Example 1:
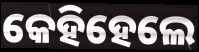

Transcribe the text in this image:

କେହିହେଲେ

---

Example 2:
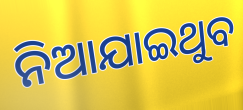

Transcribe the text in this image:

ନିଆଯାଇଥୁବ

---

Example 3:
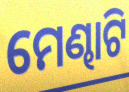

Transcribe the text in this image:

ମେଣ୍ଢାଟି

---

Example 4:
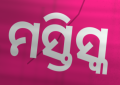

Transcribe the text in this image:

ମସ୍ତିସ୍କ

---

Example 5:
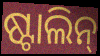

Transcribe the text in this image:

ଷ୍ଟାଲିନ୍